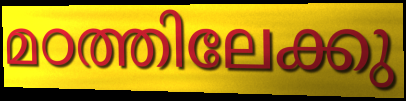
മഠത്തിലേക്കു